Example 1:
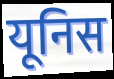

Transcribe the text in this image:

यूनिस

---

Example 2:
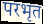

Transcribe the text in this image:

परभृत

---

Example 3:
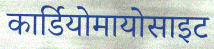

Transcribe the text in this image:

कार्डियोमायोसाइट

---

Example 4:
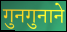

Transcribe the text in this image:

गुनगुनाने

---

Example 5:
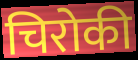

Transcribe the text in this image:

चिरोकी